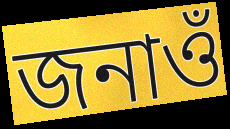
জনাওঁ